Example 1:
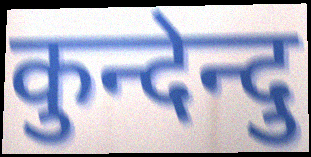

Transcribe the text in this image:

कुन्देन्दु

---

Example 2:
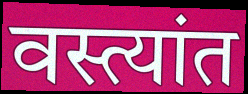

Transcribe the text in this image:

वस्त्यांत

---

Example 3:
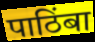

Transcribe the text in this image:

पाठिंबा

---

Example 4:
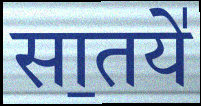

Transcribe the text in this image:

सा॒तये॑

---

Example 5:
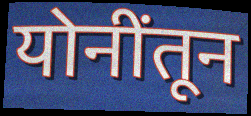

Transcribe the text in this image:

योनींतून